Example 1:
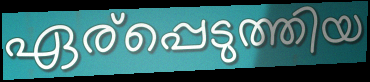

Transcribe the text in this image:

ഏര്പ്പെടുത്തിയ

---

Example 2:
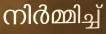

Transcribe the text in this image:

നിർമ്മിച്ച്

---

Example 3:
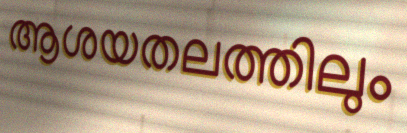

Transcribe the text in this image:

ആശയതലത്തിലും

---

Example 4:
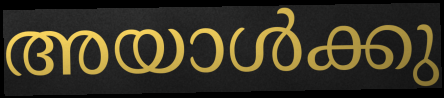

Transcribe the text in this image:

അയാൾക്കു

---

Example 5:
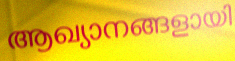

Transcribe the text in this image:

ആഖ്യാനങ്ങളായി